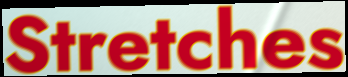
Stretches